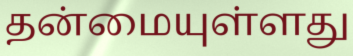
தன்மையுள்ளது